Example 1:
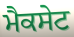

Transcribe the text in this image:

ਮੈਕਸੇਟ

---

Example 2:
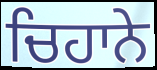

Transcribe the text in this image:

ਚਿਹਾਨੇ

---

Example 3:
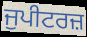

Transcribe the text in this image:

ਜੁਪੀਟਰਜ਼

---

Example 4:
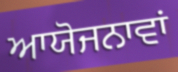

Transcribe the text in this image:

ਆਯੋਜਨਾਵਾਂ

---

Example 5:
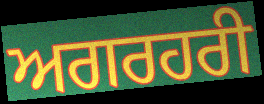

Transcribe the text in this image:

ਅਗਰਹਰੀ